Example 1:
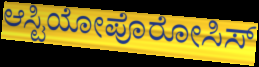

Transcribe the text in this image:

ಆಸ್ಟಿಯೋಪೊರೋಸಿಸ್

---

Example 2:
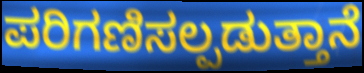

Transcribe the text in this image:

ಪರಿಗಣಿಸಲ್ಪಡುತ್ತಾನೆ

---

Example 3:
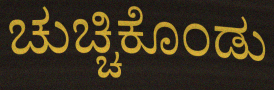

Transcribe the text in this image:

ಚುಚ್ಚಿಕೊಂಡು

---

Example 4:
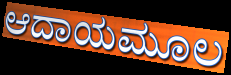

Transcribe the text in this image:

ಆದಾಯಮೂಲ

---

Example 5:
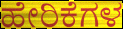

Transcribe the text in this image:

ಹೇರಿಕೆಗಳ